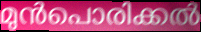
മുൻപൊരിക്കൽ